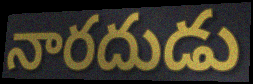
నారదుడు